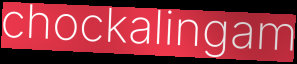
chockalingam